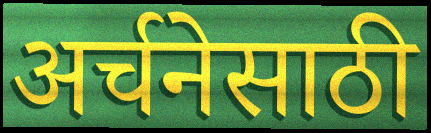
अर्चनेसाठी